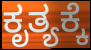
ಕೃತ್ಯಕ್ಕೆ